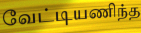
வேட்டியணிந்த